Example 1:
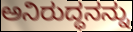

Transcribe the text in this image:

ಅನಿರುದ್ಧನನ್ನು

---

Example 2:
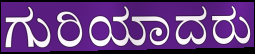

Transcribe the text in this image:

ಗುರಿಯಾದರು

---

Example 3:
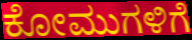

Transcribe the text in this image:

ಕೋಮುಗಳಿಗೆ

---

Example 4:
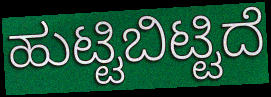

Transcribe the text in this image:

ಹುಟ್ಟಿಬಿಟ್ಟಿದೆ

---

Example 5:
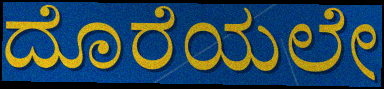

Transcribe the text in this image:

ದೊರೆಯಲೇ